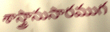
శాస్త్రానుసారముగ